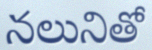
నలునితో